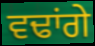
ਵਢਾਂਗੇ